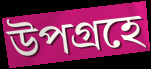
উপগ্রহে